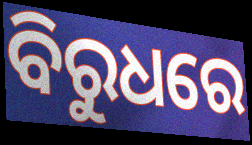
ବିରୁଧରେ